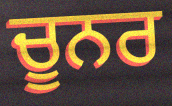
ਚੂਨਰ